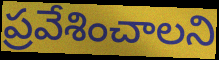
ప్రవేశించాలని